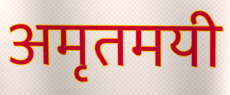
अमृतमयी